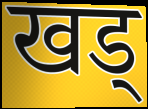
खड्